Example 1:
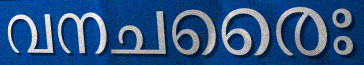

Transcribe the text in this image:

വനചരൈഃ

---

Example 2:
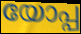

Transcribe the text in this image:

യോപ്പ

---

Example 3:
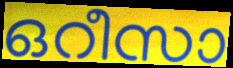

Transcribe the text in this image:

ഒറീസാ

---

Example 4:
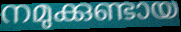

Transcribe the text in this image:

നമുക്കുണ്ടായ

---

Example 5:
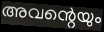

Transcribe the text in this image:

അവന്റെയും